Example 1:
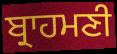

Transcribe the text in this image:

ਬ੍ਰਾਹਮਣੀ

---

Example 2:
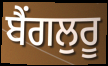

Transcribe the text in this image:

ਬੈਂਗਲੁਰੂ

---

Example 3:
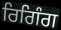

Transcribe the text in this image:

ਰਿਗਿੰਗ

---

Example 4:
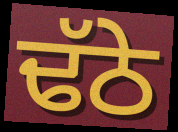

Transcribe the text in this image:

ਢੱਠੇ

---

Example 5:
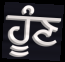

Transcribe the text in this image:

ਹੂੰਣ